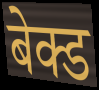
बेक्ड